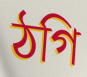
ঠগি